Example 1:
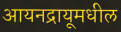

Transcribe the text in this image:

आयनद्रायूमधील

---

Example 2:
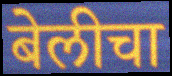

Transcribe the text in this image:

बेलीचा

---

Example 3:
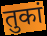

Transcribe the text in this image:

तुकां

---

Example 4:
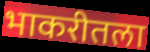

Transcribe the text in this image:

भाकरीतला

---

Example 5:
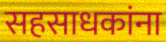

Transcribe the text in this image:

सहसाधकांना